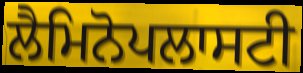
ਲੈਮਿਨੋਪਲਾਸਟੀ